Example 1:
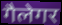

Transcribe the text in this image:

गैलेगर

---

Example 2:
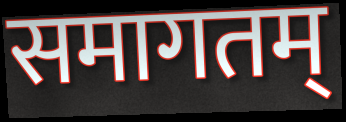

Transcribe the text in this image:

समागतम्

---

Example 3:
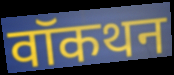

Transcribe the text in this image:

वॉकथन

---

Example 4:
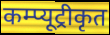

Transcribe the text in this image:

कम्प्यूट्रीकृत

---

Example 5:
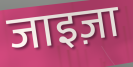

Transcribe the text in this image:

जाइज़ा